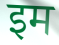
इम